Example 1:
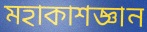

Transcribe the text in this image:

মহাকাশজ্ঞান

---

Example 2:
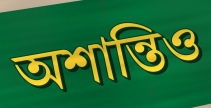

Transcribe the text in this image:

অশান্তিও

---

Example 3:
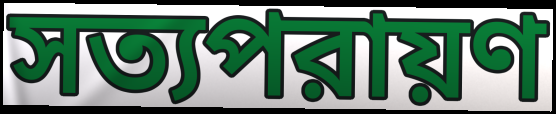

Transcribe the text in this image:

সত্যপরায়ণ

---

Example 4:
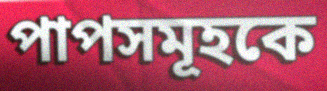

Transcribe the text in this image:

পাপসমূহকে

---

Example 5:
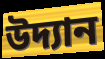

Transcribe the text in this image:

উদ্যান